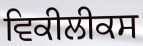
ਵਿਕੀਲੀਕਸ